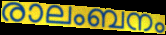
രാലംബനം